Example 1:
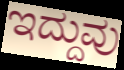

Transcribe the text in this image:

ಇದ್ದುವು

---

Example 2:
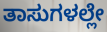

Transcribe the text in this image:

ತಾಸುಗಳಲ್ಲೇ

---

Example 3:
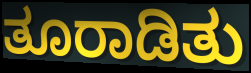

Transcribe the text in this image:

ತೂರಾಡಿತು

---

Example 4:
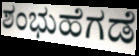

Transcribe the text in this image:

ಶಂಭುಹೆಗಡೆ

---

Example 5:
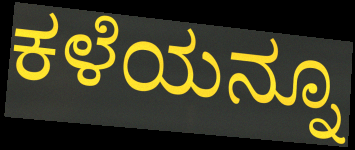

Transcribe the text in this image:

ಕಳೆಯನ್ನೂ